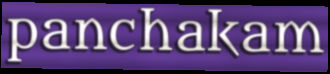
panchakam